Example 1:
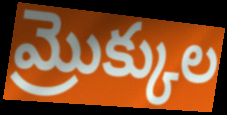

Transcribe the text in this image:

మ్రొక్కుల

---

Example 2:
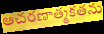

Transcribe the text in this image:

ఆచరణాత్మకతను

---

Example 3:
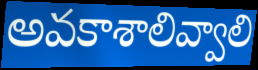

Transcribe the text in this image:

అవకాశాలివ్వాలి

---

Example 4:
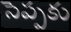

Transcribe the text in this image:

సెప్పకు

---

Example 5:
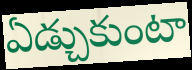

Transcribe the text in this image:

ఏడ్చుకుంటా